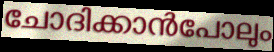
ചോദിക്കാൻപോലും